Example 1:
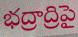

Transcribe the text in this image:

భద్రాద్రిపై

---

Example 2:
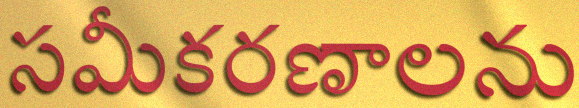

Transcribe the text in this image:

సమీకరణాలను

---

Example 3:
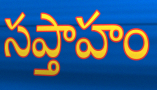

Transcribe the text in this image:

సప్తాహం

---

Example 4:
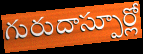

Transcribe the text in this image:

గురుదాస్పూర్లో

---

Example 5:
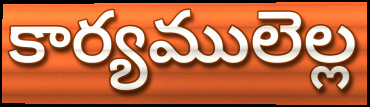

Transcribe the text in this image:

కార్యములెల్ల